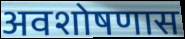
अवशोषणास